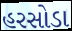
હરસોડા